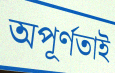
অপূর্ণতাই